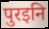
पुरइनि